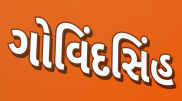
ગોવિંદસિંહ